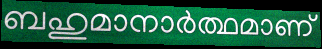
ബഹുമാനാർത്ഥമാണ്